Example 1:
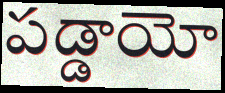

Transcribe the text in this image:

పడ్డాయో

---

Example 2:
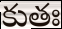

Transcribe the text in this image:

కుతః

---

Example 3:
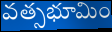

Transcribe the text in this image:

వత్సభూమిం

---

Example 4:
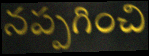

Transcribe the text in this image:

నప్పగించి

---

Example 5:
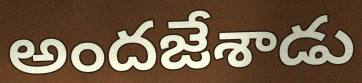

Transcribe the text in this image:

అందజేశాడు